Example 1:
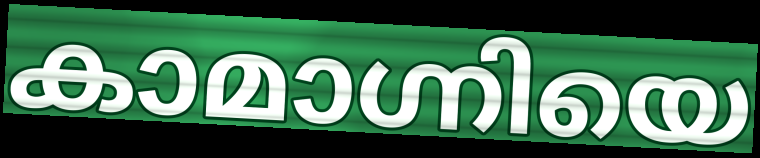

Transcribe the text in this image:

കാമാഗ്നിയെ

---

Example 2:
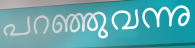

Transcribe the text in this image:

പറഞ്ഞുവന്നു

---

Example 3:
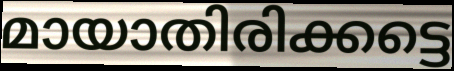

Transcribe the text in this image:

മായാതിരിക്കട്ടെ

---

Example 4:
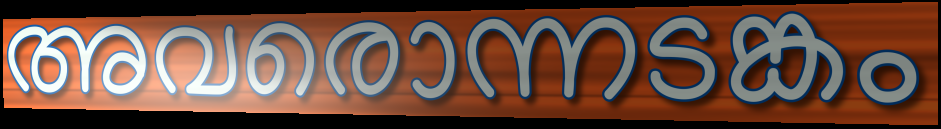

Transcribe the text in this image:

അവരൊന്നടങ്കം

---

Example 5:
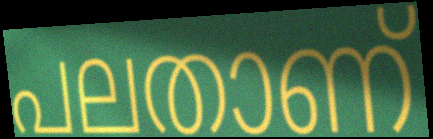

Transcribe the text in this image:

പലതാണ്